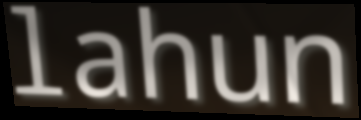
lahun